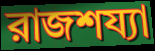
রাজশয্যা